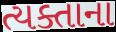
ત્યક્તાના